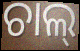
ଚାଲ୍